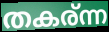
തകര്ന്ന